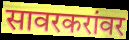
सावरकरांवर